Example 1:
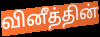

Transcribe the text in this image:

வினீத்தின்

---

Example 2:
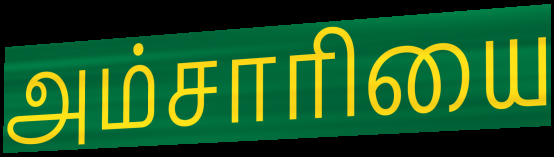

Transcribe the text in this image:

அம்சாரியை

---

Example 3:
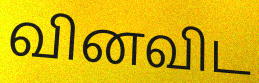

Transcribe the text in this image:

வினவிட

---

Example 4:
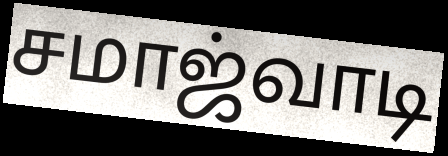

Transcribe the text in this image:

சமாஜ்வாடி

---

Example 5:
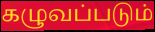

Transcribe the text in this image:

கழுவப்படும்